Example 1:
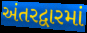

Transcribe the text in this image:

અંતરદ્વારમાં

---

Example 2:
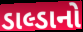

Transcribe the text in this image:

ડાલ્ડાનો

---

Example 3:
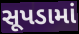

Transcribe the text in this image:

સૂપડામાં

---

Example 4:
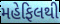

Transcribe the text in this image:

મહેફિલથી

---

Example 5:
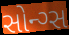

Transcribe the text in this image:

સોન્ગ્સ